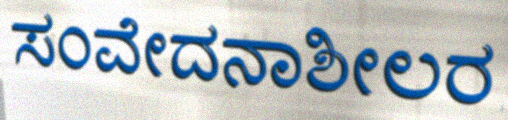
ಸಂವೇದನಾಶೀಲರ